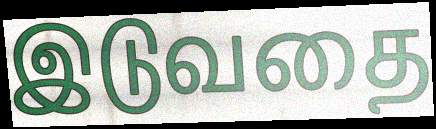
இடுவதை